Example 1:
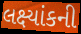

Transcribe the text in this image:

લક્ષ્યાંકની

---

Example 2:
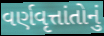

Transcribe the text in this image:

વર્ણવૃત્તાંતોનું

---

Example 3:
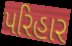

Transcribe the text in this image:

પરિહાર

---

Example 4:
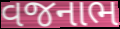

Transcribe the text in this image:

વજનાભ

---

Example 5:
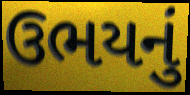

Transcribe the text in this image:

ઉભયનું